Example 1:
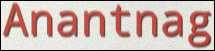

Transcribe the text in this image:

Anantnag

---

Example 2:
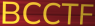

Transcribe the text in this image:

BCCTF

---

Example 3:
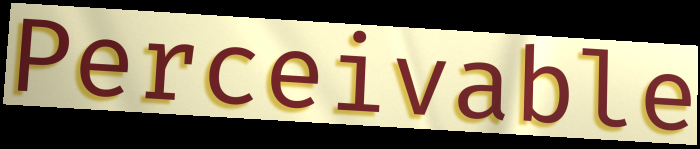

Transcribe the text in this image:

Perceivable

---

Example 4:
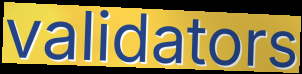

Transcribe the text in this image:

validators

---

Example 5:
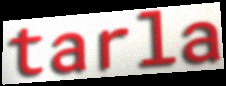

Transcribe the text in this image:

tarla